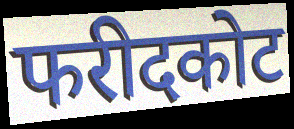
फरीदकोट